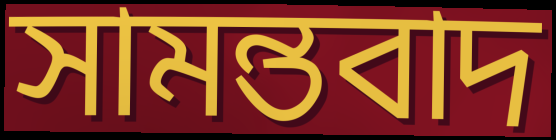
সামন্তবাদ